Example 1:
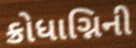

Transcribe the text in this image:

ક્રોધાગ્નિની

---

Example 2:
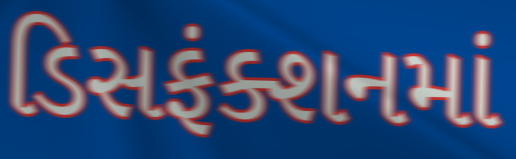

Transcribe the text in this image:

ડિસફંક્શનમાં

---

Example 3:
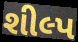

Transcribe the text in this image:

શીલ્પ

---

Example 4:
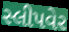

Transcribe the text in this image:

સ્લીપવેર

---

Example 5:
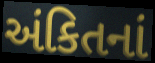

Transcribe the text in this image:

અંકિતનાં